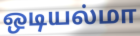
ஒடியல்மா